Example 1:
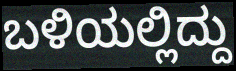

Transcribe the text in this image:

ಬಳಿಯಲ್ಲಿದ್ದು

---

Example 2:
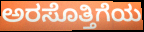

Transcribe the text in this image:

ಅರಸೊತ್ತಿಗೆಯ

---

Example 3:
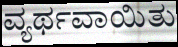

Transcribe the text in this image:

ವ್ಯರ್ಥವಾಯಿತು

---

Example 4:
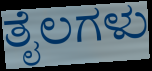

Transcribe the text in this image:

ತೈಲಗಳು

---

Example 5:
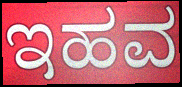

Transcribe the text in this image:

ಇಹವ